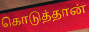
கொடுத்தான்